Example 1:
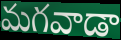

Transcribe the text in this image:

మగవాడా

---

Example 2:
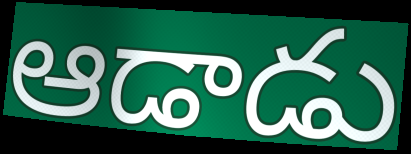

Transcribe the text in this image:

ఆడాడు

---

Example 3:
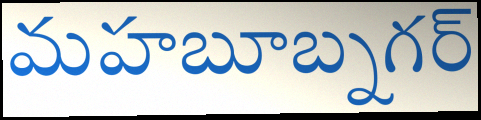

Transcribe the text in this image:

మహబూబ్నగర్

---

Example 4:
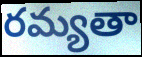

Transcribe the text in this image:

రమ్యతా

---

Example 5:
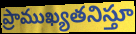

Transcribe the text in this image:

ప్రాముఖ్యతనిస్తూ